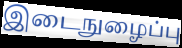
இடைநுழைப்பு